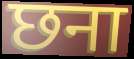
छना